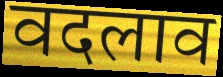
वदलाव